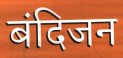
बंदिजन